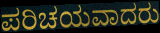
ಪರಿಚಯವಾದರು